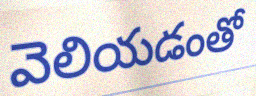
వెలియడంతో